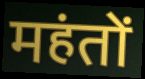
महंतों